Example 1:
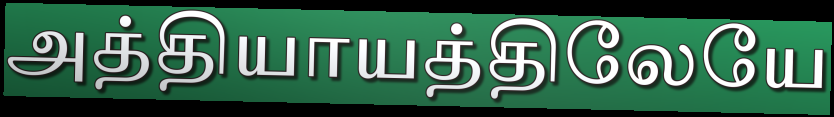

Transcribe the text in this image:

அத்தியாயத்திலேயே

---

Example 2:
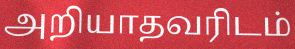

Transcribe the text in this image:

அறியாதவரிடம்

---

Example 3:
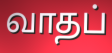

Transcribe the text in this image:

வாதப்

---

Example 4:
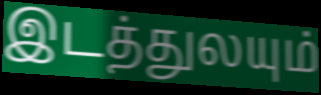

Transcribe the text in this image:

இடத்துலயும்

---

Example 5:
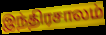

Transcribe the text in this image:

இந்திரசாலம்